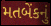
મતબેંકનું